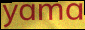
yama